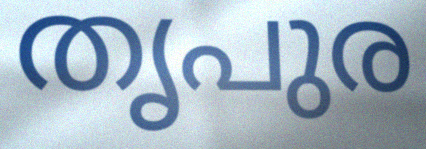
തൃപുര